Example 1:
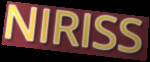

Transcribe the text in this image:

NIRISS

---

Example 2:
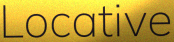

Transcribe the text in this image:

Locative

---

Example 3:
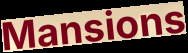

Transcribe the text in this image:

Mansions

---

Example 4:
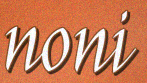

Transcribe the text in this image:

noni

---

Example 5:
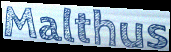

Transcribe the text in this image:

Malthus